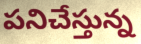
పనిచేస్తున్న